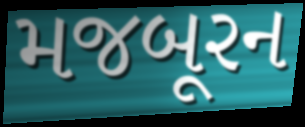
મજબૂરન